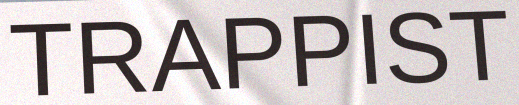
TRAPPIST